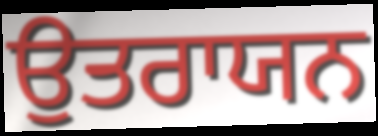
ਉਤਰਾਯਨ